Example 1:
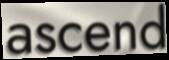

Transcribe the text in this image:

ascend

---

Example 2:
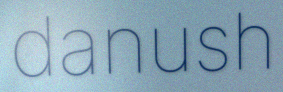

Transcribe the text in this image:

danush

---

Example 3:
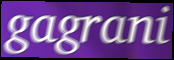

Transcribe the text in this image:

gagrani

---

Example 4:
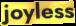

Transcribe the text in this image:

joyless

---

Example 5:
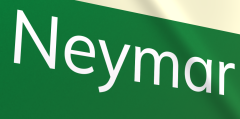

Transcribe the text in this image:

Neymar